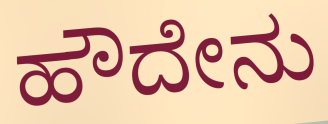
ಹೌದೇನು